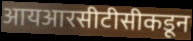
आयआरसीटीसीकडून